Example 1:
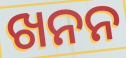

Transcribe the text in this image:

ଖନନ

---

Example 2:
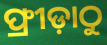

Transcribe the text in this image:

ଫ୍ରୀଡ଼ାଠୁ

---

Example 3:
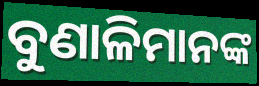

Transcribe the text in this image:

ବୁଣାଳିମାନଙ୍କ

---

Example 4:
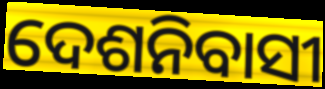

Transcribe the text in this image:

ଦେଶନିବାସୀ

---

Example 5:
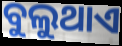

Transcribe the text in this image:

ବୁଲୁଥାଏ